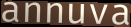
annuva